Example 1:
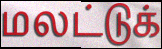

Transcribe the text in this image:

மலட்டுக்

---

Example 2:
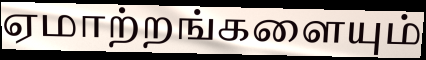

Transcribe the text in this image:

ஏமாற்றங்களையும்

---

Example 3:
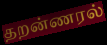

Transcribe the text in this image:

தறன்ணரல்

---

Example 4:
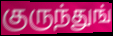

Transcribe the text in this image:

குருந்துங்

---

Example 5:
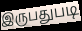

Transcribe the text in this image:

இருபதுபடி